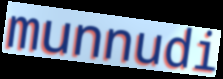
munnudi